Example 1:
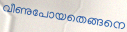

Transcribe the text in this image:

വീണുപോയതെങ്ങനെ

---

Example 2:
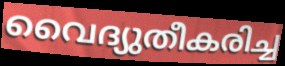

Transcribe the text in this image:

വൈദ്യുതീകരിച്ച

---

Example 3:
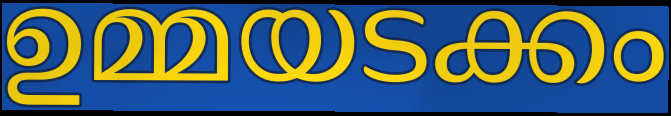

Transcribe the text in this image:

ഉമ്മയടക്കം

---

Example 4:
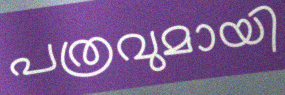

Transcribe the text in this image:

പത്രവുമായി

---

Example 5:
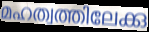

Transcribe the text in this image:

മഹത്വത്തിലേക്കു